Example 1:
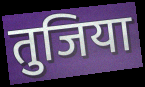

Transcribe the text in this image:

तुजिया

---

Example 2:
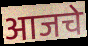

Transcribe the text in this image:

आजचे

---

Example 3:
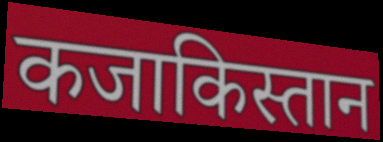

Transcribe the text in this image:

कजाकिस्तान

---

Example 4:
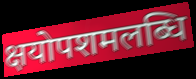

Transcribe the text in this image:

क्षयोपशमलब्धि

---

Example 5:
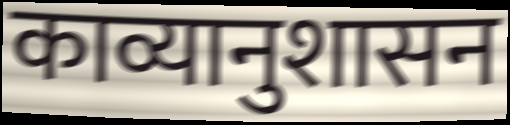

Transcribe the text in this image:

काव्यानुशासन